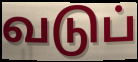
வடுப்